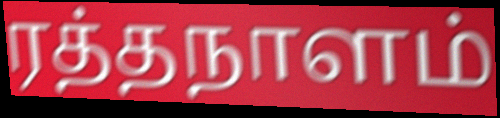
ரத்தநாளம்